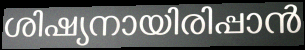
ശിഷ്യനായിരിപ്പാൻ